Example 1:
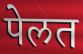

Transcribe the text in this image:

पेलत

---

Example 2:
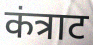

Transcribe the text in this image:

कंत्राट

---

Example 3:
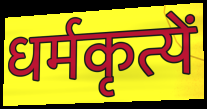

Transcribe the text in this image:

धर्मकृत्यें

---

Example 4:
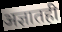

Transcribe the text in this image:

अज्ञातही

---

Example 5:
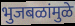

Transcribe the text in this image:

भुजबळांमुळे